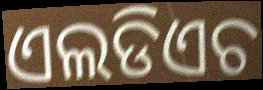
ଏଲଡିଏଚ